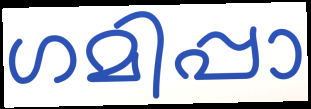
ഗമിപ്പാ